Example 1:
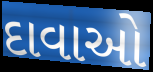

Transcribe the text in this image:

દાવાઓ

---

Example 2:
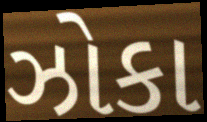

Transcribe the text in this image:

ઝોકા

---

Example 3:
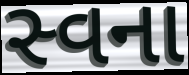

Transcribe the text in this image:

સ્વના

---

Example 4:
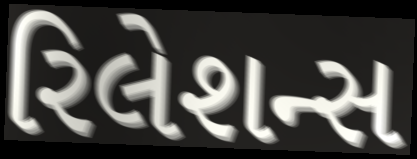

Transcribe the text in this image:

રિલેશન્સ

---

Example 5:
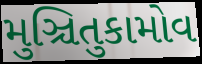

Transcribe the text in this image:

મુઞ્ચિતુકામોવ